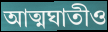
আত্মঘাতীও